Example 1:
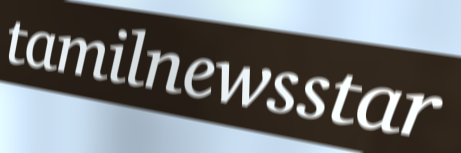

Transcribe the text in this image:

tamilnewsstar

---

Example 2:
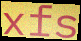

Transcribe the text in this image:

xfs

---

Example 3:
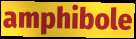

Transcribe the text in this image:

amphibole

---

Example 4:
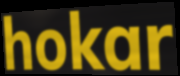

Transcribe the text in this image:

hokar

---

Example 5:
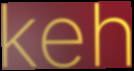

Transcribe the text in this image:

keh